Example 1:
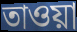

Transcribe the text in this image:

তাওয়া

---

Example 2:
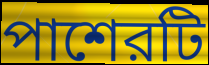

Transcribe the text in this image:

পাশেরটি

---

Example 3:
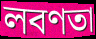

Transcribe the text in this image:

লবণতা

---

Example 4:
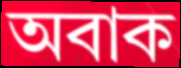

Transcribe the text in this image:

অবাক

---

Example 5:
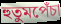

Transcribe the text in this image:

হুতুমপেঁচা